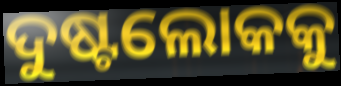
ଦୁଷ୍ଟଲୋକକୁ